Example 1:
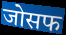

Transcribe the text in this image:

जोसफ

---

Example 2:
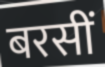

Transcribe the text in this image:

बरसीं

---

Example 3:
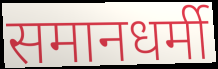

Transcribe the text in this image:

समानधर्मी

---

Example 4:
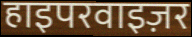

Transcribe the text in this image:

हाइपरवाइज़र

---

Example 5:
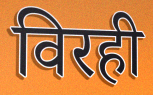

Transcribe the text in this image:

विरही